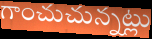
గాంచుచున్నట్లు